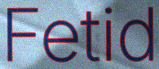
Fetid